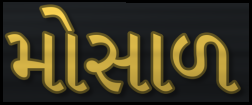
મોસાળ